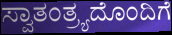
ಸ್ವಾತಂತ್ರ್ಯದೊಂದಿಗೆ